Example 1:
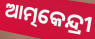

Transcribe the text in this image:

ଆତ୍ମକେନ୍ଦ୍ରୀ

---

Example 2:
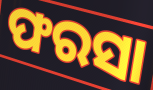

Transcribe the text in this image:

ଫରସା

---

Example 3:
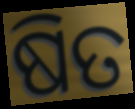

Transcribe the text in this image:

ଷିତ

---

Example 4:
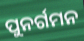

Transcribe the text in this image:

ପୁନର୍ଗମନ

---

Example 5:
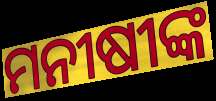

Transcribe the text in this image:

ମନୀଷୀଙ୍କ